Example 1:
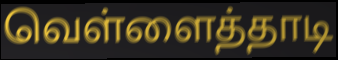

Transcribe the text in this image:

வெள்ளைத்தாடி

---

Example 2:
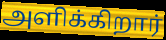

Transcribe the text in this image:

அளிக்கிறார்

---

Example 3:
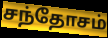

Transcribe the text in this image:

சந்தோசம்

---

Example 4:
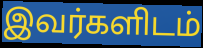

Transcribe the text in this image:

இவர்களிடம்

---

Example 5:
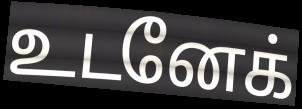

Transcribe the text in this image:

உடனேக்